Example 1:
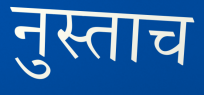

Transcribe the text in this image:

नुस्ताच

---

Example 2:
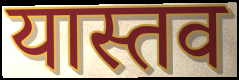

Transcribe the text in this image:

यास्तव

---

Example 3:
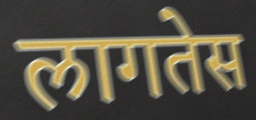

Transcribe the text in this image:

लागतेस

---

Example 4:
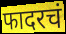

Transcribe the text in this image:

फादरचं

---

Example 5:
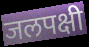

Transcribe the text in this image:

जलपक्षी